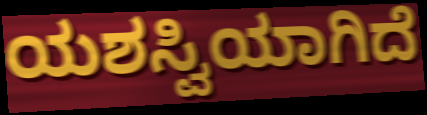
ಯಶಸ್ವಿಯಾಗಿದೆ